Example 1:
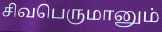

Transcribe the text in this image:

சிவபெருமானும்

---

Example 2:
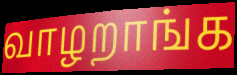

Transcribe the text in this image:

வாழறாங்க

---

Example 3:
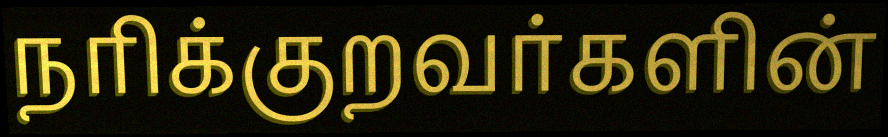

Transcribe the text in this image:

நரிக்குறவர்களின்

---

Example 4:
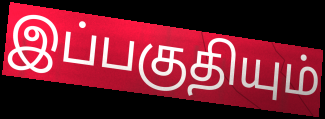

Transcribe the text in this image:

இப்பகுதியும்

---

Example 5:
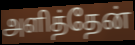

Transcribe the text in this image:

அளித்தேன்